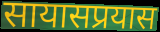
सायासप्रयास